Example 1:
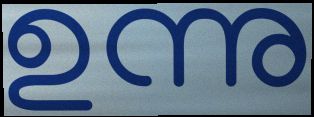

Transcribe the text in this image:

ഉന്നു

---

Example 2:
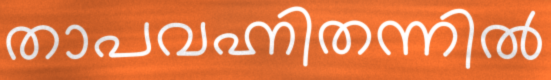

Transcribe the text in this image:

താപവഹ്നിതന്നിൽ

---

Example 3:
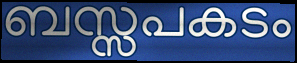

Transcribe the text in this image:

ബസ്സപകടം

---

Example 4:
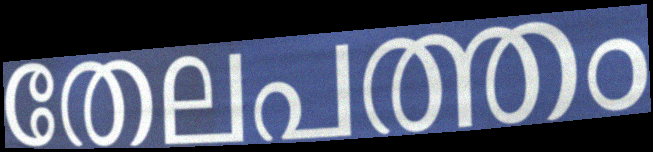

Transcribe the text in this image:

തേലപത്തം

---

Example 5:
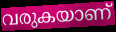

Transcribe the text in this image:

വരുകയാണ്